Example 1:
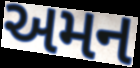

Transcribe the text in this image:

અમન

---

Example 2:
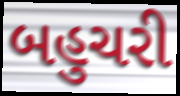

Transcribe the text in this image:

બહુચરી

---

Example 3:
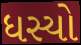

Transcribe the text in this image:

ધસ્યો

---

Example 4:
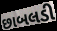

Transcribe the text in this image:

છાબલડી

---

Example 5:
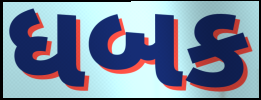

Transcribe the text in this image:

ધબક